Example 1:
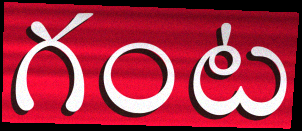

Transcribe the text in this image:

గంట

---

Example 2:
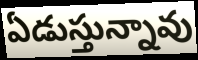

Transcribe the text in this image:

ఏడుస్తున్నావు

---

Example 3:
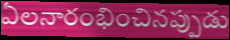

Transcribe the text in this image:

ఏలనారంభించినప్పుడు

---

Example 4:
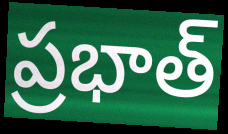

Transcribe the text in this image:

ప్రభాత్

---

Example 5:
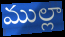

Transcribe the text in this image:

ముల్లా